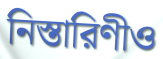
নিস্তারিণীও